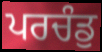
ਪਰਚੰਡੁ